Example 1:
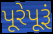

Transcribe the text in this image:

પૂરેપૂરૂં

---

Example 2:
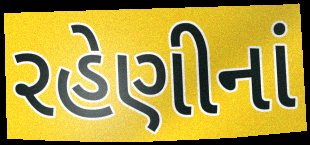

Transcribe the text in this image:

રહેણીનાં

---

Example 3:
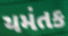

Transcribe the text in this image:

યમંતક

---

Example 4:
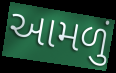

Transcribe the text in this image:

આમળું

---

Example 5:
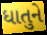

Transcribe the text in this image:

ધાતુને